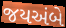
જયઅંબે